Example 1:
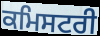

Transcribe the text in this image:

ਕਮਿਸਟਰੀ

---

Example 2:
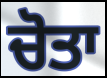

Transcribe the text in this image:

ਚੋਤਾ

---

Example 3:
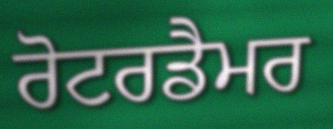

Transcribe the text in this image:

ਰੋਟਰਡੈਮਰ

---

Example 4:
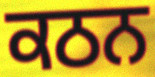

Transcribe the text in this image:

ਕਠਨ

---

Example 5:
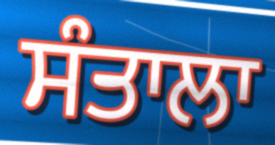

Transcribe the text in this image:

ਸੰਤਾਲਾ